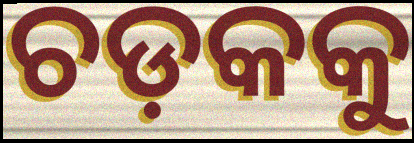
ଚଡ଼କକୁ